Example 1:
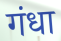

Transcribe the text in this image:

गंधा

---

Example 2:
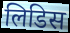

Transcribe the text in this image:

लिडिस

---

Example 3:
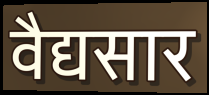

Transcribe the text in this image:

वैद्यसार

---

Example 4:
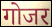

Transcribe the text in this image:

गोजर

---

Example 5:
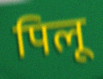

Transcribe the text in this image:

पिलू